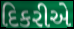
દિકરીએ